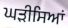
ਘੜੀਸਿਆਂ